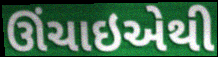
ઊંચાઇએથી